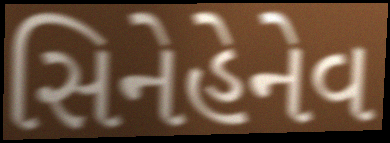
સિનેહેનેવ